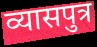
व्यासपुत्र